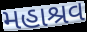
મહાશ્રવ